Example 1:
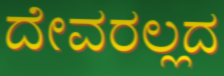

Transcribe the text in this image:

ದೇವರಲ್ಲದ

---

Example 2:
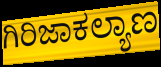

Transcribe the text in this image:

ಗಿರಿಜಾಕಲ್ಯಾಣ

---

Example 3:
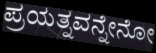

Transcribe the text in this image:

ಪ್ರಯತ್ನವನ್ನೇನೋ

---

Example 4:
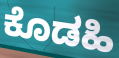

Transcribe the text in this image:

ಕೊಡಹಿ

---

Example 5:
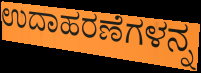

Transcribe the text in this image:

ಉದಾಹರಣೆಗಳನ್ನ